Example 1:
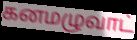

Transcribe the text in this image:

கனமழுவாட்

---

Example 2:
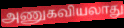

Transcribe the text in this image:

அணுகவியலாது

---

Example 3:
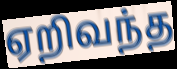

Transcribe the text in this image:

ஏறிவந்த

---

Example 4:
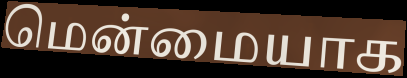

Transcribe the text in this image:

மென்மையாக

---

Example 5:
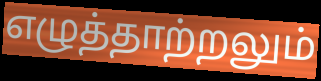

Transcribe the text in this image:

எழுத்தாற்றலும்